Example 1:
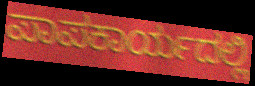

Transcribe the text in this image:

ಪಾಪಕಾರ್ಯದಲ್ಲಿ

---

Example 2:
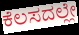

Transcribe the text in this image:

ಕೆಲಸದಲ್ಲೇ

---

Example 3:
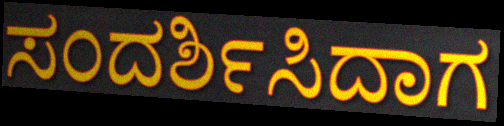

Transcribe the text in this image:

ಸಂದರ್ಶಿಸಿದಾಗ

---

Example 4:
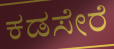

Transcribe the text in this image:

ಕಡಸೇರೆ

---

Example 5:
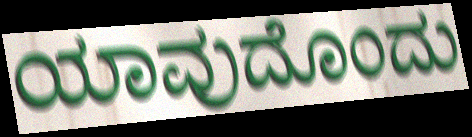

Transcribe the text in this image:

ಯಾವುದೊಂದು